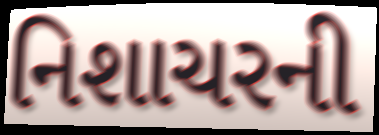
નિશાચરની